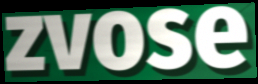
zvose